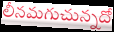
లీనమగుచున్నదో